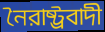
নৈরাষ্ট্রবাদী